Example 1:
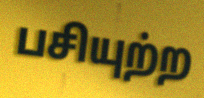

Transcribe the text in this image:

பசியுற்ற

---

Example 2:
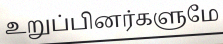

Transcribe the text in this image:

உறுப்பினர்களுமே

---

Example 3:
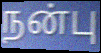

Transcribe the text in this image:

நன்பு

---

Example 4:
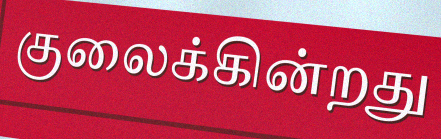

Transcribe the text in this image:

குலைக்கின்றது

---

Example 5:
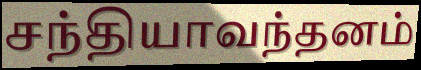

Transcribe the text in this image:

சந்தியாவந்தனம்